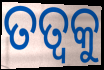
ତତ୍ୱକୁ